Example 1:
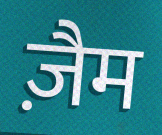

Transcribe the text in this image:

ज़ैम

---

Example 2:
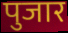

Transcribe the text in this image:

पुजार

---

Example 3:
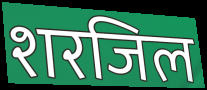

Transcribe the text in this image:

शरजिल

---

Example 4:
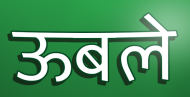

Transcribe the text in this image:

ऊबले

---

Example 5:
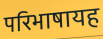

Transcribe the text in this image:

परिभाषायह